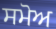
ਸਮੋਅ